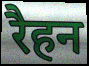
रैहन